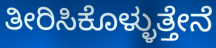
ತೀರಿಸಿಕೊಳ್ಳುತ್ತೇನೆ